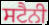
ਸਟੈਨੀ